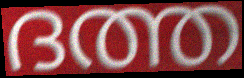
ദത്ത